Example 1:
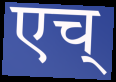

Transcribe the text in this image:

एच्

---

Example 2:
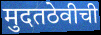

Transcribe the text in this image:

मुदतठेवीची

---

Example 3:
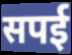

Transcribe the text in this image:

सपई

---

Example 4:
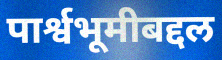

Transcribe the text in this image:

पार्श्वभूमीबद्दल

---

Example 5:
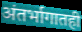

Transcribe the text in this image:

अंतर्भागातही